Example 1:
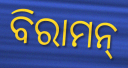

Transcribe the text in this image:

ବିରାମନ୍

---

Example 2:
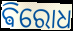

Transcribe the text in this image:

ଵିରୋଧ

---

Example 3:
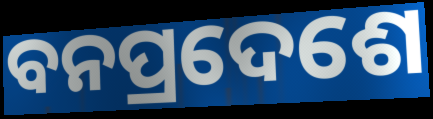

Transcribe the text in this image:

ବନପ୍ରଦେଶେ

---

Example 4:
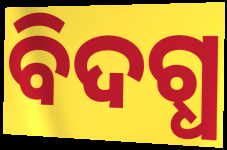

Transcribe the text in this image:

ବିଦଗ୍ଧ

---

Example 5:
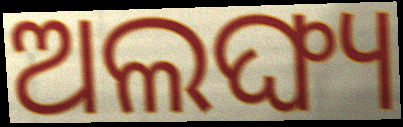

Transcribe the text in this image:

ଅଲଙ୍ଘ୍ୟ